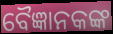
ବୈଜ୍ଞାନକଙ୍କ